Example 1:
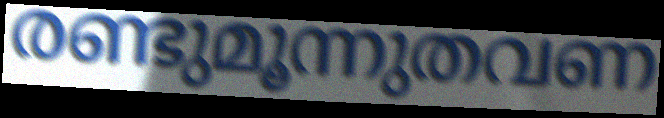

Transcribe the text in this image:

രണ്ടുമൂന്നുതവണ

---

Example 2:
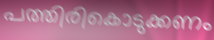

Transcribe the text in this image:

പത്തിരികൊടുക്കണം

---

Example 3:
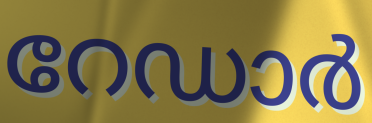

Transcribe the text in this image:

റേഡാർ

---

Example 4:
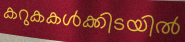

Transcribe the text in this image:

കറുകകൾക്കിടയിൽ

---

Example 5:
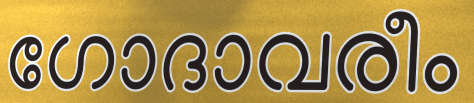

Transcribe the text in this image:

ഗോദാവരീം